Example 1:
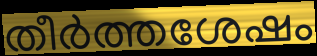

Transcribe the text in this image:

തീർത്തശേഷം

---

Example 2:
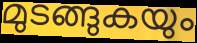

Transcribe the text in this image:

മുടങ്ങുകയും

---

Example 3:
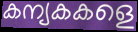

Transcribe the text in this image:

കന്യകകളെ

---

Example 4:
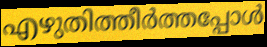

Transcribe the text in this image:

എഴുതിത്തീർത്തപ്പോൾ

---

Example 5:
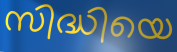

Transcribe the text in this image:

സിദ്ധിയെ